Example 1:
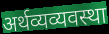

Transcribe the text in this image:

अर्थव्यव्यवस्था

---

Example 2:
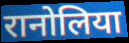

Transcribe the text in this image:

रानोलिया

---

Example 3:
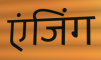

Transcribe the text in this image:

एंजिंग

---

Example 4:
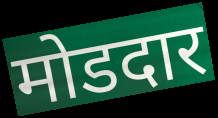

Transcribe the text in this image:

मोडदार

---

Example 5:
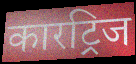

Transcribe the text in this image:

कारट्रिज